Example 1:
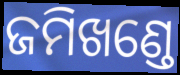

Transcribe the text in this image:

ଜମିଖଣ୍ଡେ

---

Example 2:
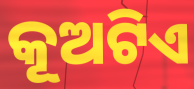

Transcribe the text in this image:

କୂଅଟିଏ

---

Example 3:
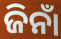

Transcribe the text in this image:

ଜିନାଁ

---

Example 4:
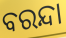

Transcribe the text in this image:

ବରନ୍ଦା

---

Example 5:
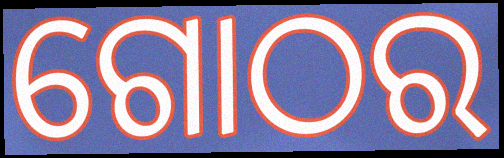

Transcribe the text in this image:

ଗୋଠର